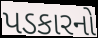
પડકારનો